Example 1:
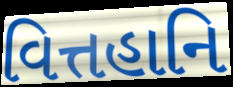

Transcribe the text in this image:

વિત્તહાનિ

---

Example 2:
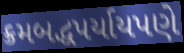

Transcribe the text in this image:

ક્રમબદ્ધપર્યાયપણે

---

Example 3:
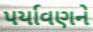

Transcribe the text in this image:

પર્યાવણને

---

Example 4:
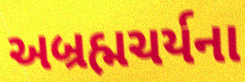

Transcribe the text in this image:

અબ્રહ્મચર્યના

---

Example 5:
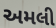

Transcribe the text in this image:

અમલી